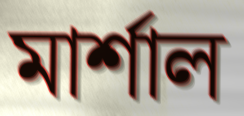
মাৰ্শাল